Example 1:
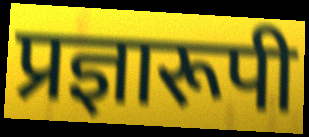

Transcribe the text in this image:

प्रज्ञारूपी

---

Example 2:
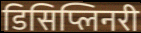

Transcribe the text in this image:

डिसिप्लिनरी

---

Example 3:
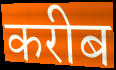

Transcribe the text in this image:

करीब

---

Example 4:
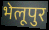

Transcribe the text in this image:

भेलूपुर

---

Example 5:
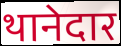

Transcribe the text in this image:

थानेदार